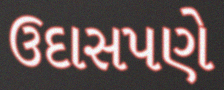
ઉદાસપણે